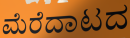
ಮೆರೆದಾಟದ